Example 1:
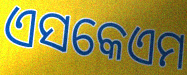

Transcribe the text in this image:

ଏସକେଏମ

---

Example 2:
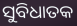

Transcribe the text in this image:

ସୁବିଧାତକ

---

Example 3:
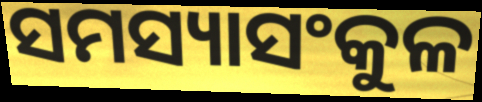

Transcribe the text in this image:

ସମସ୍ୟାସଂକୁଳ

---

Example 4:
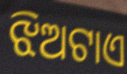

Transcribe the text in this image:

ଝିଅଟାଏ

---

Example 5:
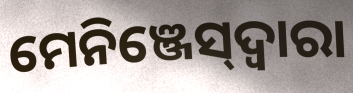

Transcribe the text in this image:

ମେନିଞ୍ଜେସ୍‌ଦ୍ୱାରା